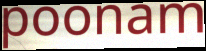
poonam